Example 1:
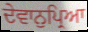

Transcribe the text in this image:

ਦੇਵਾਨੁਪ੍ਰਿਆ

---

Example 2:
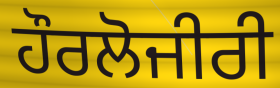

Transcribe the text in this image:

ਹੌਰਲੋਜੀਰੀ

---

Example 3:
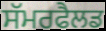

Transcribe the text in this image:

ਸੱਮਰਫੈਲਡ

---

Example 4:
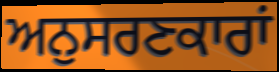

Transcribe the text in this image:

ਅਨੁਸਰਣਕਾਰਾਂ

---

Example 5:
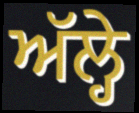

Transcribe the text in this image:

ਅੱਲ੍ਹੇ